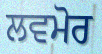
ਲਵਮੋਰ